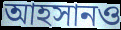
আহসানও